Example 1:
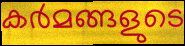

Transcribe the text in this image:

കർമങ്ങളുടെ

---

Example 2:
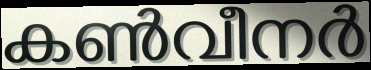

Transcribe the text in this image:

കൺവീനർ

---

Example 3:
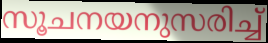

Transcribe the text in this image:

സൂചനയനുസരിച്ച്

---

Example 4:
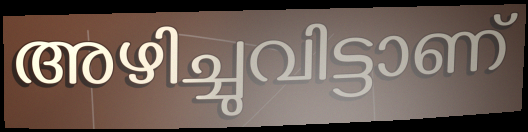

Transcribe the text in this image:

അഴിച്ചുവിട്ടാണ്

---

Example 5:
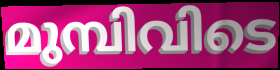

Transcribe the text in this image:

മുമ്പിവിടെ